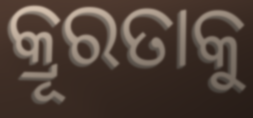
କ୍ରୂରତାକୁ